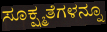
ಸೂಕ್ಷ್ಮತೆಗಳನ್ನೂ